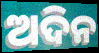
ଅଦିନ